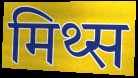
मिथ्स